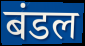
बंडल